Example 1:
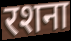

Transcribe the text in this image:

रशना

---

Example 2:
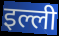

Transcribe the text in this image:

इल्ली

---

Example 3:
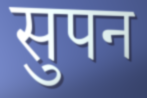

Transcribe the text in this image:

सुपन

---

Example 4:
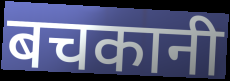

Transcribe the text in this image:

बचकानी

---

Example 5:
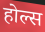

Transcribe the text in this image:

होल्स